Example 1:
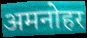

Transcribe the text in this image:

अमनोहर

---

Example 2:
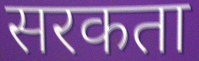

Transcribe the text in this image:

सरकता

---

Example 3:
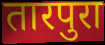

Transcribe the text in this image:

तारपुरा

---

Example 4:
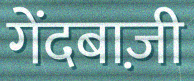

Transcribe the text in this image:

गेंदबाज़ी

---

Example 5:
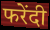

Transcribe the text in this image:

फरेंदी